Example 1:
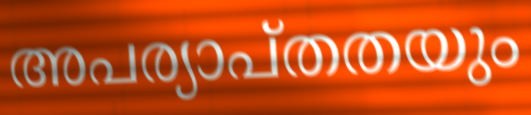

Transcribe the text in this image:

അപര്യാപ്തതയും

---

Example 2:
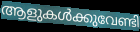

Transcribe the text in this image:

ആളുകൾക്കുവേണ്ടി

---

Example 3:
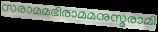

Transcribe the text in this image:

സരാമമഭിരാമമനുസ്മരാമി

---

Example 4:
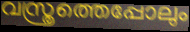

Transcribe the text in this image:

വസ്ത്രത്തെപ്പോലും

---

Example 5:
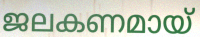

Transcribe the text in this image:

ജലകണമായ്